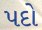
પદો